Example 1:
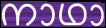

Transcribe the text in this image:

നാഥാ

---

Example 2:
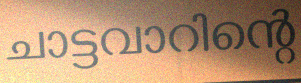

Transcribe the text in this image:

ചാട്ടവാറിന്റെ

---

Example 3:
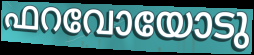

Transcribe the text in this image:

ഫറവോയോടു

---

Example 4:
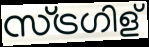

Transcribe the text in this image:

സ്ട്രഗിള്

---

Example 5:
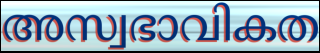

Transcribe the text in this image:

അസ്വഭാവികത